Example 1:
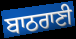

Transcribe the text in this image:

ਬਾਠਰਾਣੀ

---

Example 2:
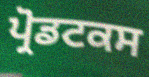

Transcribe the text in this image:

ਪ੍ਰੋਡਟਕਸ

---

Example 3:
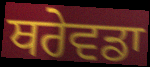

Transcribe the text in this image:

ਥਰੇਵਡਾ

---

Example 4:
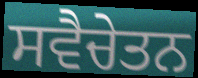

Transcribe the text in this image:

ਸਵੈਚੇਤਨ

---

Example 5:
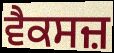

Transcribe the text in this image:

ਵੈਕਸਜ਼